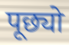
पूछ्यो